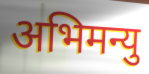
अभिमन्यु